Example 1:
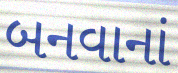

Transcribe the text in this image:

બનવાનાં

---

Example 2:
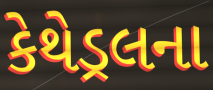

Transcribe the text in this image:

કેથેડ્રલના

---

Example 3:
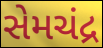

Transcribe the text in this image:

સેમચંદ્ર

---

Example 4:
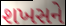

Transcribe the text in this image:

શખસને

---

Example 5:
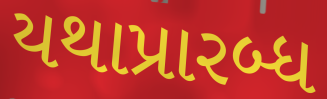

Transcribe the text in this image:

યથાપ્રારબ્ધ